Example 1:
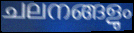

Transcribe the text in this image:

ചലനങ്ങളും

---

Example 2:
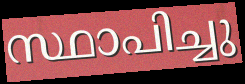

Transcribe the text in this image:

സ്ഥാപിച്ചു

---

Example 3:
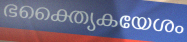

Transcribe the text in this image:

ഭക്ത്യൈകയേശം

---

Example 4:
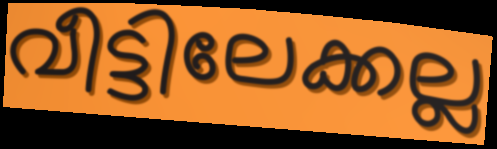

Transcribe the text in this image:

വീട്ടിലേക്കല്ല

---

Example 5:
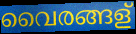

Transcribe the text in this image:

വൈരങ്ങള്